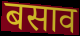
बसाव